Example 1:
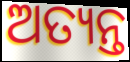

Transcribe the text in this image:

ଅତ୍ୟନ୍ତ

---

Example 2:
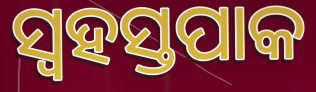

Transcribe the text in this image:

ସ୍ୱହସ୍ତପାକ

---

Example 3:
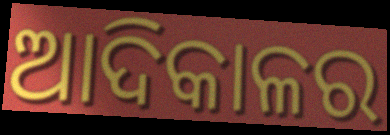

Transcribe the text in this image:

ଆଦିକାଳର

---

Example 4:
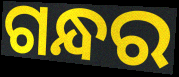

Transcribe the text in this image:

ଗନ୍ଧର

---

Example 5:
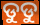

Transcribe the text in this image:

ଡୁଡୁ